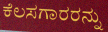
ಕೆಲಸಗಾರರನ್ನು